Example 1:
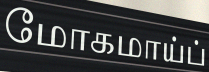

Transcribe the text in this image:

மோகமாய்ப்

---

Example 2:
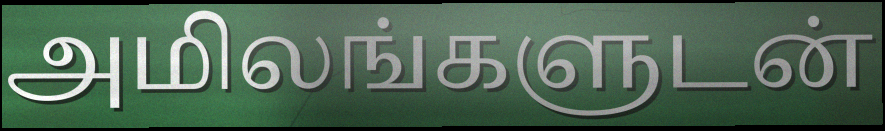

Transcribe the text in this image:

அமிலங்களுடன்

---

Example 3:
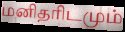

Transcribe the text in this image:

மனிதரிடமும்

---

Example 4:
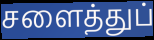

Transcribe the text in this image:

சளைத்துப்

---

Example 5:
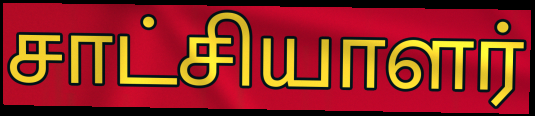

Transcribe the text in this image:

சாட்சியாளர்